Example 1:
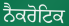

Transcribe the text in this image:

ਨੈਕਰੋਟਿਕ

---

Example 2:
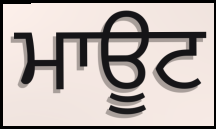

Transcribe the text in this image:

ਮਾਊਟ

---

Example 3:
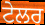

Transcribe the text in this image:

ਟੇਲਰ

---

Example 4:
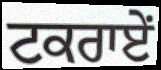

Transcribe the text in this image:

ਟਕਰਾਏਂ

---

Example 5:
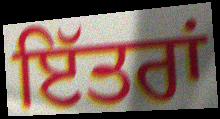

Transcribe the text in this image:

ਇੱਤਰਾਂ